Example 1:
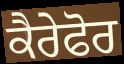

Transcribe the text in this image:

ਕੈਰੇਫੋਰ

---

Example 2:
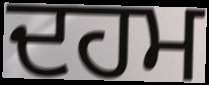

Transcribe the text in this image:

ਦਹਮ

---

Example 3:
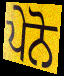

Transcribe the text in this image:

ਪੇਨੋ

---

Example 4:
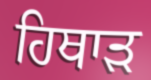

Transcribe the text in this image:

ਹਿਥਾੜ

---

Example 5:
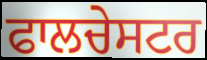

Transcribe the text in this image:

ਫਾਲਚੇਸਟਰ